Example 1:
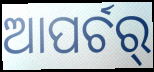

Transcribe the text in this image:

ଆପର୍ଚର୍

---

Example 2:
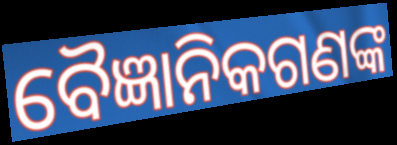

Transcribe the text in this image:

ବୈଜ୍ଞାନିକଗଣଙ୍କ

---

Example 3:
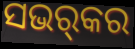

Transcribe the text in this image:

ସଭର୍‌କର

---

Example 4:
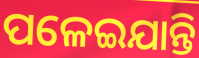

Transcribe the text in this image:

ପଳେଇଯାନ୍ତି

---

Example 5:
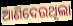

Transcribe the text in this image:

ଆଣିଦେଉଥିଲା